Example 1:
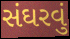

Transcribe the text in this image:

સંઘરવું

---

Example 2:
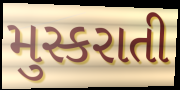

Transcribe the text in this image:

મુસ્કરાતી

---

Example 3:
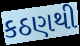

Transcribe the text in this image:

કઠણથી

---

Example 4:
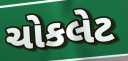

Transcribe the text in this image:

ચોકલેટ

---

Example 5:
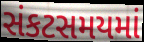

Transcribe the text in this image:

સંકટસમયમાં